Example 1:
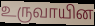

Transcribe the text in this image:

உருவாயின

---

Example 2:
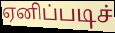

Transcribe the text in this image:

ஏனிப்படிச்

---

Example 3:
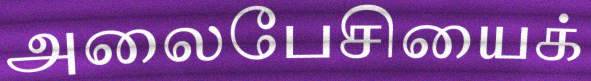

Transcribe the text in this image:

அலைபேசியைக்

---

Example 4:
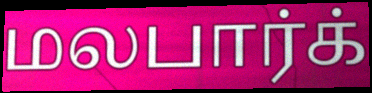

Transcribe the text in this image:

மலபார்க்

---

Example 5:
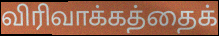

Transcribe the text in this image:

விரிவாக்கத்தைக்